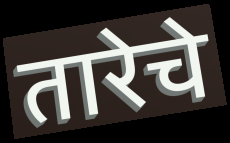
तारेचे